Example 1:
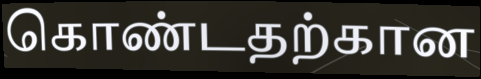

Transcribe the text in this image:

கொண்டதற்கான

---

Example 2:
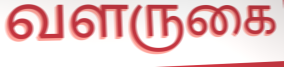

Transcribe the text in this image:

வளருகை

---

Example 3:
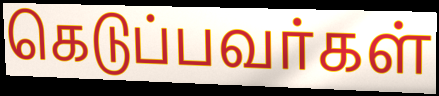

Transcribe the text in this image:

கெடுப்பவர்கள்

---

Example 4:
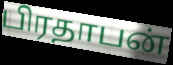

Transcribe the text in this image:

பிரதாபன்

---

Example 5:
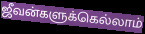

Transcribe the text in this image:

ஜீவன்களுக்கெல்லாம்